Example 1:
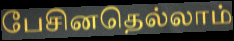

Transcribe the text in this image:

பேசினதெல்லாம்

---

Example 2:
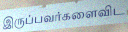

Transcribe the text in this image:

இருப்பவர்களைவிட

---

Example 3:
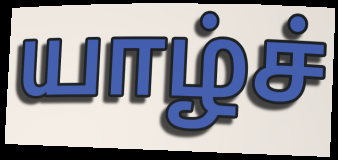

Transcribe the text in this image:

யாழ்ச்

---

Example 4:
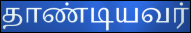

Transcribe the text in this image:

தாண்டியவர்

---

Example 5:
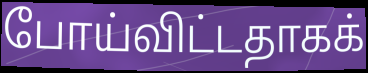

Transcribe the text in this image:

போய்விட்டதாகக்